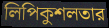
লিপিকুশলতার